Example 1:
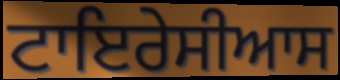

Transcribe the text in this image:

ਟਾਇਰੇਸੀਆਸ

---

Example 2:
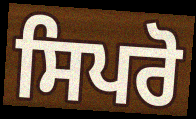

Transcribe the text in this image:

ਸਿਪਰੋ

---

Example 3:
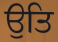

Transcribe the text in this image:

ਉਤਿ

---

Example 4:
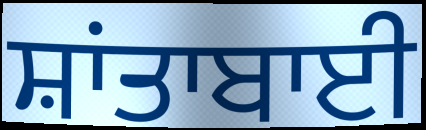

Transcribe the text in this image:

ਸ਼ਾਂਤਾਬਾਈ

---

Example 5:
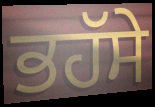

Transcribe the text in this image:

ਭਹੱਸੇ